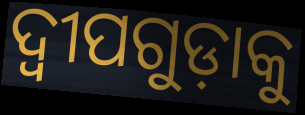
ଦ୍ୱୀପଗୁଡ଼ାକୁ